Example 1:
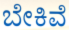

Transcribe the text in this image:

ಬೇಕಿವೆ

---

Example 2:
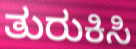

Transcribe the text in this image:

ತುರುಕಿಸಿ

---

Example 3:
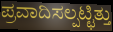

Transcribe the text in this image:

ಪ್ರವಾದಿಸಲ್ಪಟ್ಟಿತ್ತು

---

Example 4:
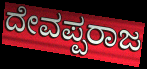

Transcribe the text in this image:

ದೇವಪ್ಪರಾಜ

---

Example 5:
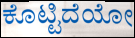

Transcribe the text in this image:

ಕೊಟ್ಟಿದೆಯೋ